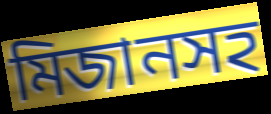
মিজানসহ